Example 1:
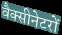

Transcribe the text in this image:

वैक्सीनेटरों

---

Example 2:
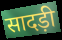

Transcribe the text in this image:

सादड़ी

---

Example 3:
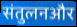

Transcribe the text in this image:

संतुलनऔर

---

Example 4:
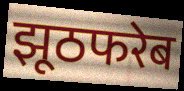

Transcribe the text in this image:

झूठफरेब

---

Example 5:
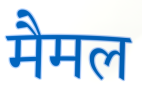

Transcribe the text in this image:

मैमल